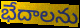
భేదాలను